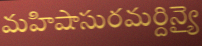
మహిషాసురమర్దిన్యై